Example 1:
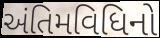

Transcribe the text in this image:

અંતિમવિધિનો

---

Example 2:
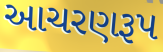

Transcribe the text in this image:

આચરણરૂપ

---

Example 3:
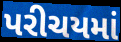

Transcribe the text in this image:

પરીચયમાં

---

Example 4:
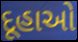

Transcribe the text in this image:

દૂહાઓ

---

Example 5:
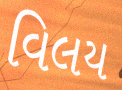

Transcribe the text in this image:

વિલય